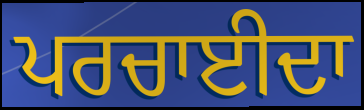
ਪਰਚਾਈਦਾ